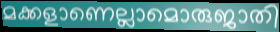
മക്കളാണെല്ലാമൊരുജാതി